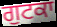
ਗੁਟਕਾ